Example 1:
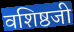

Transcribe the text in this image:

वशिष्ठजी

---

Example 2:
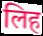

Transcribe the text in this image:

लिह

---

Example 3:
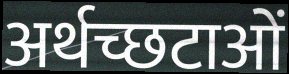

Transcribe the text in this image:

अर्थच्छटाओं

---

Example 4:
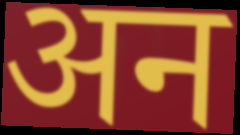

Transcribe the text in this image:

अन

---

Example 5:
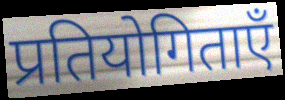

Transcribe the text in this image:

प्रतियोगिताएँ